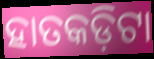
ହାତକଡ଼ିଟା